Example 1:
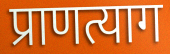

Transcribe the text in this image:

प्राणत्याग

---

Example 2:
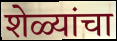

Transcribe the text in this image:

शेळ्यांचा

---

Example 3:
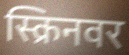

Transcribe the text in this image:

स्क्रिनवर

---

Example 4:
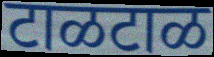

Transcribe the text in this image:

टाळटाळ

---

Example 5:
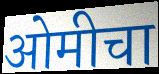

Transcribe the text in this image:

ओमीचा